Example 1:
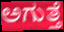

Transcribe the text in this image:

ಅಗುತ್ತೆ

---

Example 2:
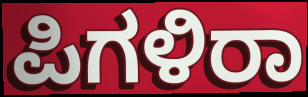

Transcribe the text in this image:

ಪಿಗಳಿರಾ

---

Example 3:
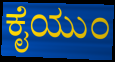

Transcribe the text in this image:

ಕೈಯುಂ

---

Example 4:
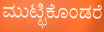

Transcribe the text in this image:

ಮುಟ್ಟಿಕೊಂಡರೆ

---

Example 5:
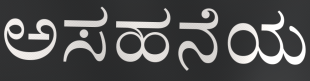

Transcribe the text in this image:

ಅಸಹನೆಯ